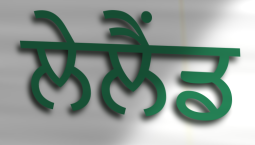
ਲੇਲੈਂਡ